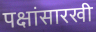
पक्षांसारखी